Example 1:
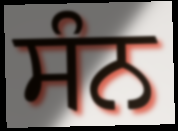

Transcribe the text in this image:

ਸੰਨ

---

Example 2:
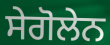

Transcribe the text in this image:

ਸੇਗੋਲੇਨ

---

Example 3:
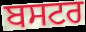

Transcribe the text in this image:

ਬਸਟਰ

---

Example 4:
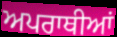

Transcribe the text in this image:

ਅਪਰਾਥੀਆਂ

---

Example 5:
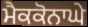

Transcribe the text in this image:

ਮੈਕਕੋਨਾਘੇ